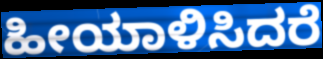
ಹೀಯಾಳಿಸಿದರೆ